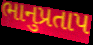
ભાનુપ્રતાપ